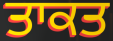
ਤਾਕਤ